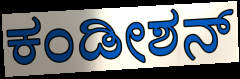
ಕಂಡೀಶನ್